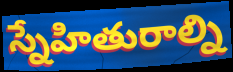
స్నేహితురాల్ని